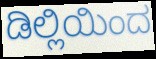
ಡಿಲ್ಲಿಯಿಂದ